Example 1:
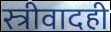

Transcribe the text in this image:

स्त्रीवादही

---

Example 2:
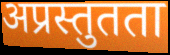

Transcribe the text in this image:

अप्रस्तुतता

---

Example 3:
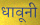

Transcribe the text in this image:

धावूनी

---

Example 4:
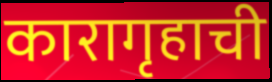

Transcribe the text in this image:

कारागृहाची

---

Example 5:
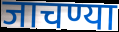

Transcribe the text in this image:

जाचण्या